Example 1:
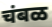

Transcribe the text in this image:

चंबळ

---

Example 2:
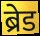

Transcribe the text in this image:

ब्रेड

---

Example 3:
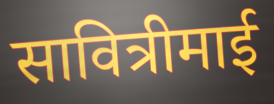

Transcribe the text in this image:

सावित्रीमाई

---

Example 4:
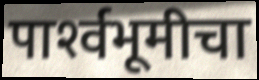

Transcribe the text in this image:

पार्श्वभूमीचा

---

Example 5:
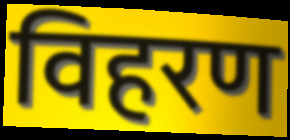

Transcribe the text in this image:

विहरण